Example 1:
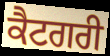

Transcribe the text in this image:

ਕੈਟਗਰੀ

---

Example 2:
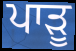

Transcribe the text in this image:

ਪਾੜੂ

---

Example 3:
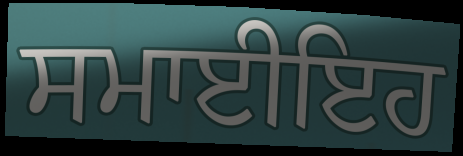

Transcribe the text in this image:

ਸਮਾਈਇਹ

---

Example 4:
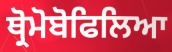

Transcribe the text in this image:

ਥ੍ਰੋਮੋਬੋਫਿਲਿਆ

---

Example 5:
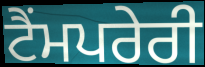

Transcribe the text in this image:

ਟੈਂਮਪਰੇਰੀ